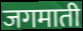
जगमाती